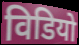
विडियो